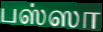
பஸ்ஸா